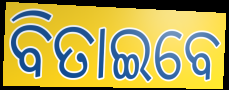
ବିତାଇବେ